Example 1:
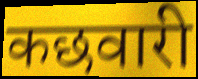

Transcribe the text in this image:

कछवारी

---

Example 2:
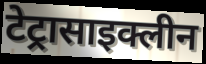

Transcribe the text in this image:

टेट्रासाइक्लीन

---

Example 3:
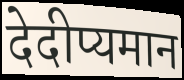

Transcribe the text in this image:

देदीप्यमान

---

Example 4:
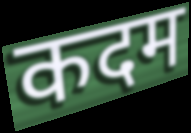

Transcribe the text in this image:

कदम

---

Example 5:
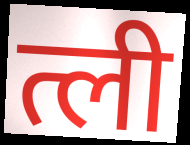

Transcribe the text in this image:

त्ली